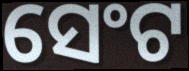
ସେଂଟ